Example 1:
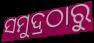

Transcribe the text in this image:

ସମୁଦ୍ରଠାରୁ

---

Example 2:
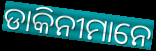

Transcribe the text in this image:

ଡାକିନୀମାନେ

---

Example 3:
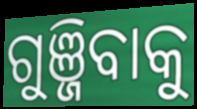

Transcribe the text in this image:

ଗୁଞ୍ଜିବାକୁ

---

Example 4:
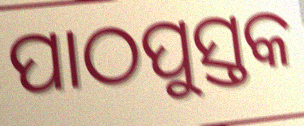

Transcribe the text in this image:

ପାଠପୁସ୍ତକ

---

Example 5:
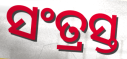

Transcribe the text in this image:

ସଂତ୍ରସ୍ତ